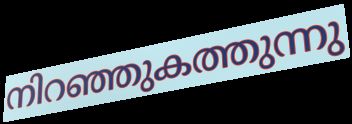
നിറഞ്ഞുകത്തുന്നു